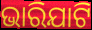
ଭାରିଯାଟି